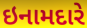
ઇનામદારે